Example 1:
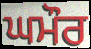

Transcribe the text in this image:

ਘਮੌਰ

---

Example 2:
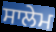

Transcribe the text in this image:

ਸਾਲੇਮ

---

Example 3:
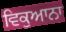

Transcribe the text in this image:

ਵਿਕੁਆਨਾ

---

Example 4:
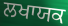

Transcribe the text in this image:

ਲਖਾਯਕ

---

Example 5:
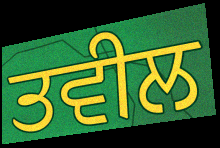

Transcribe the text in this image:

ਤਵੀਲ